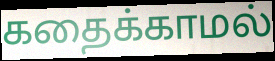
கதைக்காமல்